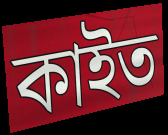
কাইত